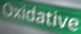
Oxidative